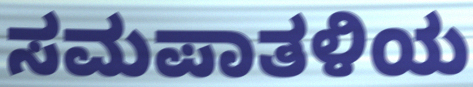
ಸಮಪಾತಳಿಯ